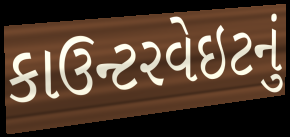
કાઉન્ટરવેઇટનું